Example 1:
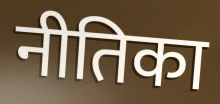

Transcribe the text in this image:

नीतिका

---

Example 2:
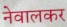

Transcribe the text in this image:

नेवालकर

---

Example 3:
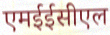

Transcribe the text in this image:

एमईईसीएल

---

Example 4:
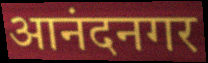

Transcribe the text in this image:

आनंदनगर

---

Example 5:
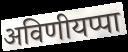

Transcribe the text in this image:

अविणीयप्पा